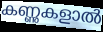
കണ്ണുകളാൽ